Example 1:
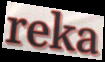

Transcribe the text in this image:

reka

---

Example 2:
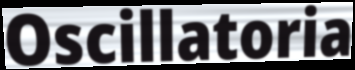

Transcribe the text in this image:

Oscillatoria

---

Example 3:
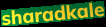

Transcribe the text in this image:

sharadkale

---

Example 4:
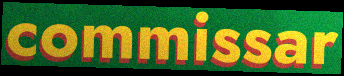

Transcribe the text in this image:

commissar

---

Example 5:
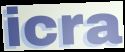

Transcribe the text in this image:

icra